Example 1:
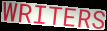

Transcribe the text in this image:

WRITERS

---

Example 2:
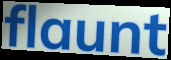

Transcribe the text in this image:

flaunt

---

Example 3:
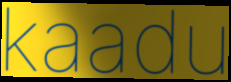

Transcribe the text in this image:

kaadu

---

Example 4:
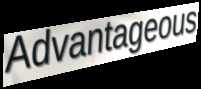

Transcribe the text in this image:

Advantageous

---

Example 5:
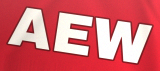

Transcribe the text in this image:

AEW